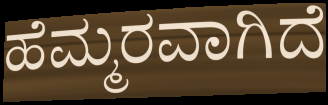
ಹೆಮ್ಮರವಾಗಿದೆ